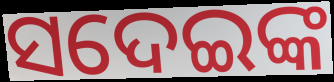
ସଦେଇଙ୍କ